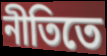
নীতিতে